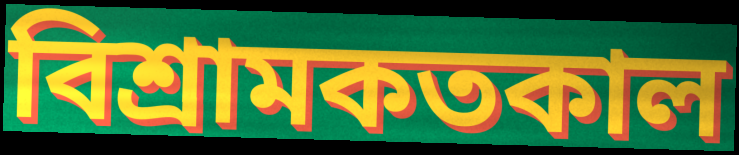
বিশ্রামকতকাল